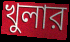
খুলার